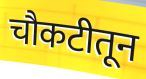
चौकटीतून